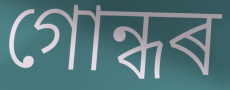
গোন্ধৰ